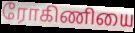
ரோகிணியை